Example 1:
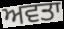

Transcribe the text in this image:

ਅਵਤਾ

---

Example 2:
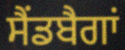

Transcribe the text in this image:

ਸੈਂਡਬੈਗਾਂ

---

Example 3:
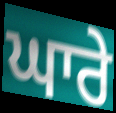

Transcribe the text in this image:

ਘਾਰੇ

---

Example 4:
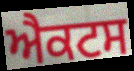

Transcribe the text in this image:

ਐਕਟਸ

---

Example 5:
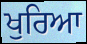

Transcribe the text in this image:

ਖੁਰਿਆ